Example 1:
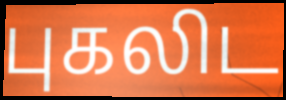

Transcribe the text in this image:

புகலிட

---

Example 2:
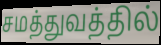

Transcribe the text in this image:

சமத்துவத்தில்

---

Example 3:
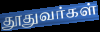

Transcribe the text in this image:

தூதுவர்கள்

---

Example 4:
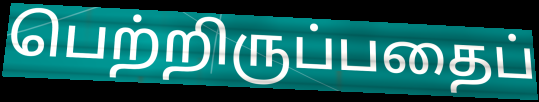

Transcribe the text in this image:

பெற்றிருப்பதைப்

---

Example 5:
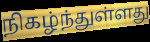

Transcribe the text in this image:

நிகழ்ந்துள்ளது